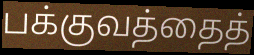
பக்குவத்தைத்